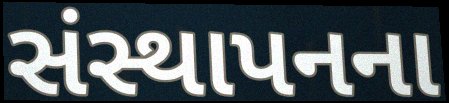
સંસ્થાપનના